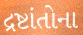
દ્રષ્ટાંતોના